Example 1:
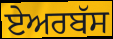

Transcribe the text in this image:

ਏਅਰਬੱਸ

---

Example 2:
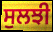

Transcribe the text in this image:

ਸੁਲਝੀ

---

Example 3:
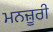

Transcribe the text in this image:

ਮਨਜ਼ੂਰੀ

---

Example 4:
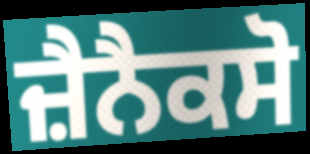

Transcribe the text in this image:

ਜ਼ੈਨੈਕਸੋ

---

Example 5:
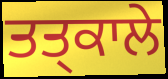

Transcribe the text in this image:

ਤਤ੍ਕਾਲੇ